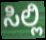
ಸಿಲ್ಲಿ